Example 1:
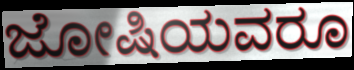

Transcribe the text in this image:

ಜೋಷಿಯವರೂ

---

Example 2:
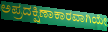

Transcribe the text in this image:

ಅಪ್ರದಕ್ಷಿಣಾಕಾರವಾಗಿಯೇ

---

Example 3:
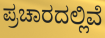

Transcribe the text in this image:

ಪ್ರಚಾರದಲ್ಲಿವೆ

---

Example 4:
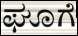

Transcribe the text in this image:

ಘೂಗೆ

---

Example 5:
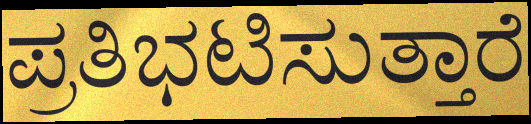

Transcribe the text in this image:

ಪ್ರತಿಭಟಿಸುತ್ತಾರೆ